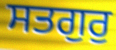
ਸਤਗੁਰੁ